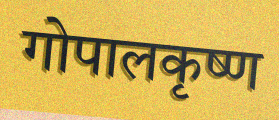
गोपालकृष्ण